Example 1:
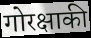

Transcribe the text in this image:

गोरक्षाकी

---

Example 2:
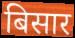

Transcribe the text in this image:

बिसार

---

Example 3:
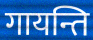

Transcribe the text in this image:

गायन्ति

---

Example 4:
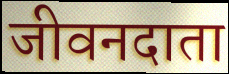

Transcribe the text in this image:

जीवनदाता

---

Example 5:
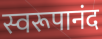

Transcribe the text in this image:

स्‍वरूपानंद